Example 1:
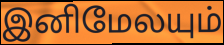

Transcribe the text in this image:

இனிமேலயும்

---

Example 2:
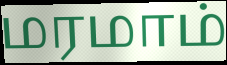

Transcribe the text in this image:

மரமாம்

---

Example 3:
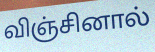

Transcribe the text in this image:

விஞ்சினால்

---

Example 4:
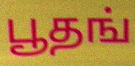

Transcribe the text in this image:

பூதங்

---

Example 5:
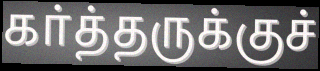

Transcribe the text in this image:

கர்த்தருக்குச்